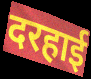
दरहाई